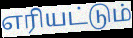
எரியட்டும்